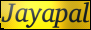
Jayapal